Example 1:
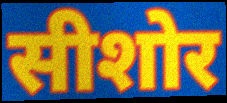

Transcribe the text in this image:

सीशोर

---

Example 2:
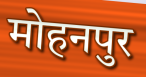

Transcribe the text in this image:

मोहनपुर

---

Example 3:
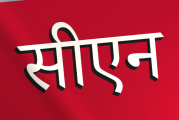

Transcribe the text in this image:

सीएन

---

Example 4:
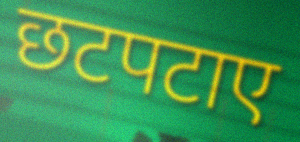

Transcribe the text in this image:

छटपटाए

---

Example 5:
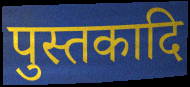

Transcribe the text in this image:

पुस्तकादि